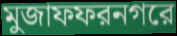
মুজাফফরনগরে